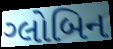
ગ્લોબિન